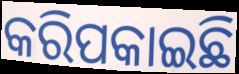
କରିପକାଇଛି